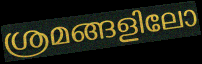
ശ്രമങ്ങളിലോ